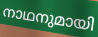
നാഥനുമായി